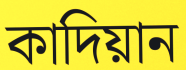
কাদিয়ান